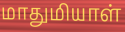
மாதுமியாள்